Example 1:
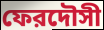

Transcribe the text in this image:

ফেরদৌসী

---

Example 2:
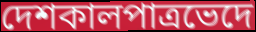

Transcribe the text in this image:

দেশকালপাত্রভেদে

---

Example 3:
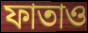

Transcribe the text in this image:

ফাতাও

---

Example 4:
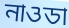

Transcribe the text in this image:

নাওডা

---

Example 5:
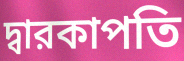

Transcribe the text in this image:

দ্বারকাপতি